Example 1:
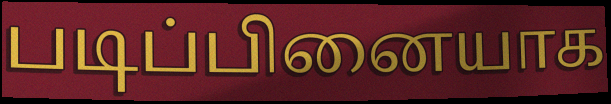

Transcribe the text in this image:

படிப்பினையாக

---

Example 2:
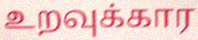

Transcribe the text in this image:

உறவுக்கார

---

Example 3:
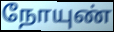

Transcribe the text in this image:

நோயுண்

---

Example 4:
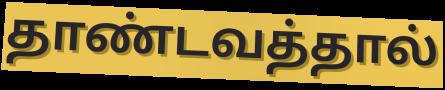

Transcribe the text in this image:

தாண்டவத்தால்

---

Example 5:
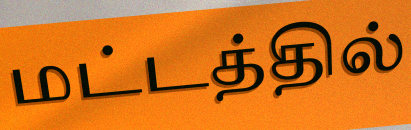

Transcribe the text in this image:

மட்டத்தில்